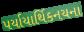
પર્યાયાર્થિકનયના